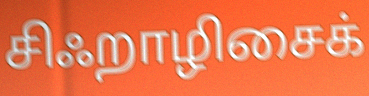
சிஃறாழிசைக்